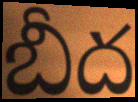
బీద